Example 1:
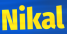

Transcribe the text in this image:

Nikal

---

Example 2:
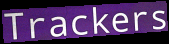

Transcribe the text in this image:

Trackers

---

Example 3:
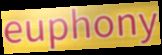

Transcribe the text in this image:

euphony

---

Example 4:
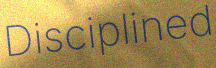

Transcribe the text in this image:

Disciplined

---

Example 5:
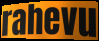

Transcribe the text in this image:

rahevu